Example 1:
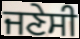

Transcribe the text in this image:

ਜਣੇਸੀ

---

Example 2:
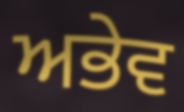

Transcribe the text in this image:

ਅਭੇਵ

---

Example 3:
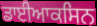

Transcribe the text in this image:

ਡਾਈਆਕਸਿਨ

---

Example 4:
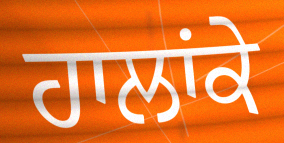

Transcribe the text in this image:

ਹਾਲਾਂਕੇ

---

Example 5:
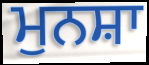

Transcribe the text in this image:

ਮੁਨਸ਼ਾ